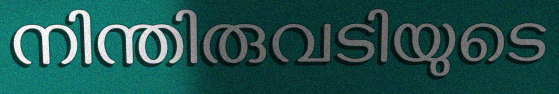
നിന്തിരുവടിയുടെ